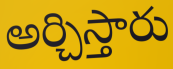
అర్చిస్తారు